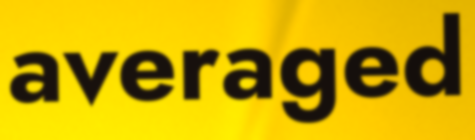
averaged